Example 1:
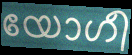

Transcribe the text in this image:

യോഗീ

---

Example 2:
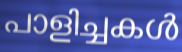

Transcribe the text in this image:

പാളിച്ചകൾ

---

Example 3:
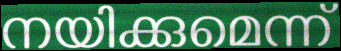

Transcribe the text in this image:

നയിക്കുമെന്ന്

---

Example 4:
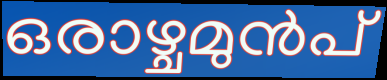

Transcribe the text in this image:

ഒരാഴ്ചമുൻപ്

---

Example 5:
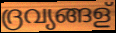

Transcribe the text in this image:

ദ്രവ്യങ്ങള്